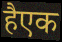
हैएक